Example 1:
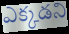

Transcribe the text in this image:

ఎక్కడని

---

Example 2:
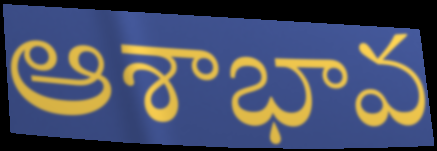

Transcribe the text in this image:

ఆశాభావ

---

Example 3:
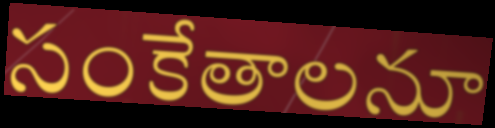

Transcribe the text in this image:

సంకేతాలనూ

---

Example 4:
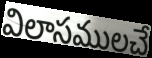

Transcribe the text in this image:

విలాసములచే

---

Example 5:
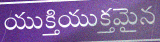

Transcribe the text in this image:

యుక్తియుక్తమైన